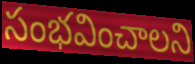
సంభవించాలని